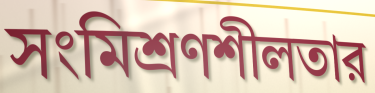
সংমিশ্রণশীলতার